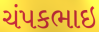
ચંપકભાઇ